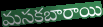
మసకబారాయి